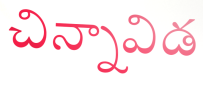
చిన్నావిడ